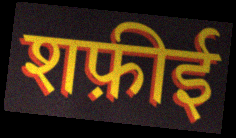
शफ़ीई